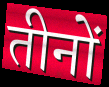
तीनों